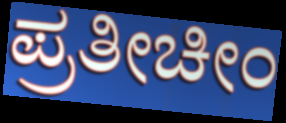
ಪ್ರತೀಚೀಂ